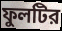
ফুলটির